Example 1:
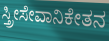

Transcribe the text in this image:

ಸ್ತ್ರೀಸೇವಾನಿಕೇತನ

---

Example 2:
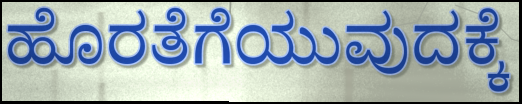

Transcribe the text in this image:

ಹೊರತೆಗೆಯುವುದಕ್ಕೆ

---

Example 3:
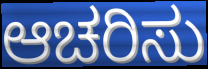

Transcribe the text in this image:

ಆಚರಿಸು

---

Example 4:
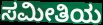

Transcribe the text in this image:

ಸಮೀತಿಯ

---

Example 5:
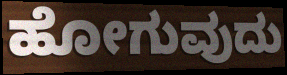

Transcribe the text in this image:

ಹೋಗುವುದು